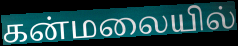
கன்மலையில்